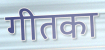
गीतका